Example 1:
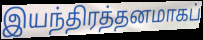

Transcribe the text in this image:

இயந்திரத்தனமாகப்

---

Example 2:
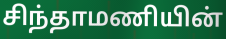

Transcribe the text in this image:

சிந்தாமணியின்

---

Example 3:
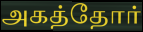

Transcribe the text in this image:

அகத்தோர்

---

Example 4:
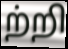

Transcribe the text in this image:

ற்றி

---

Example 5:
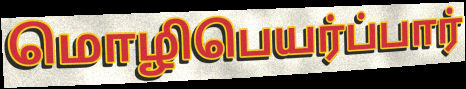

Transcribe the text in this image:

மொழிபெயர்ப்பார்